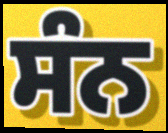
ਸੰਨ